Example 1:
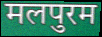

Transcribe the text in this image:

मलपुरम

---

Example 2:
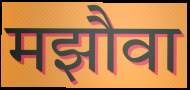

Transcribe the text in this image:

मझौवा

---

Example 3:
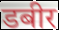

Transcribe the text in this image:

डबीर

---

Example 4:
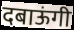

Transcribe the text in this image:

दबाऊंगी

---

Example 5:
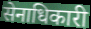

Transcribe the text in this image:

सेनाधिकारी